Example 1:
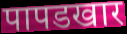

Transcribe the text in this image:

पापडखार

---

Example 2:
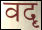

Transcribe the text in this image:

वदृ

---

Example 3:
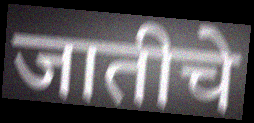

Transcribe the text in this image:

जातीचे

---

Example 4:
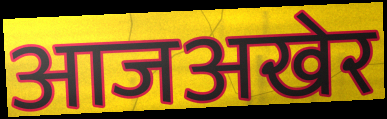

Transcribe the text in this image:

आजअखेर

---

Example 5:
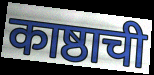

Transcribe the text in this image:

काष्ठाची